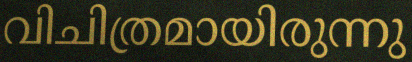
വിചിത്രമായിരുന്നു